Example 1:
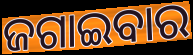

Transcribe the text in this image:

ଜଗାଇବାର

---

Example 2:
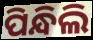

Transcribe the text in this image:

ପିନ୍ଧିଲି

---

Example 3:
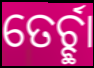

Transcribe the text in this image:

ତେର୍ଚ୍ଛା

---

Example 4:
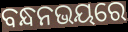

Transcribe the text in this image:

ବନ୍ଧନଭୟରେ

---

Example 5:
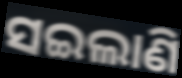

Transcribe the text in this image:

ସଇଲାଣି